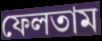
ফেলতাম